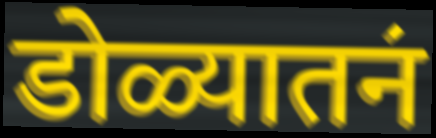
डोळ्यातनं